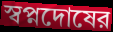
স্বপ্নদোষের